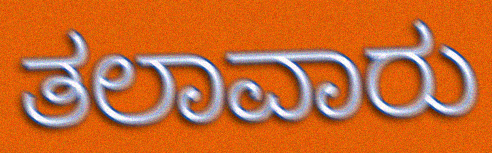
ತಲಾವಾರು